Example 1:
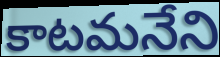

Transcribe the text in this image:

కాటమనేని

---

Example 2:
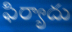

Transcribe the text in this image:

ఫిర్యాదు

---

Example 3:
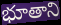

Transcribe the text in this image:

భూతాని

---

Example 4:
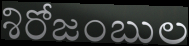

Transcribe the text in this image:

శిరోజంబుల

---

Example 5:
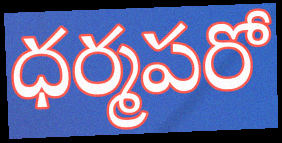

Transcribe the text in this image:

ధర్మపరో